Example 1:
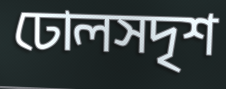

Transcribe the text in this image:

ঢোলসদৃশ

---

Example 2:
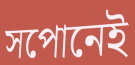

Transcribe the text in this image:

সপোনেই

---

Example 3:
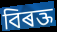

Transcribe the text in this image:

বিৰক্ত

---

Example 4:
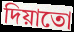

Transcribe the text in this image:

দিয়াতো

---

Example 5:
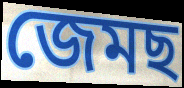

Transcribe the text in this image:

জেমছ